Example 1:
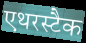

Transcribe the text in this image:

एथरस्टैक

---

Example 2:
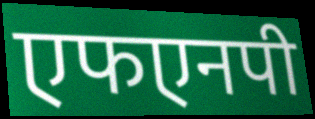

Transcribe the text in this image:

एफएनपी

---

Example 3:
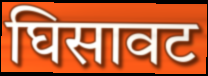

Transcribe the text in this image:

घिसावट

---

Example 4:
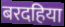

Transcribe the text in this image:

बरदहिया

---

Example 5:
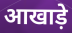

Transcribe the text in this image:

आखाड़े